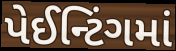
પેઈન્ટિંગમાં